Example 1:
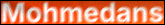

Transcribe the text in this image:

Mohmedans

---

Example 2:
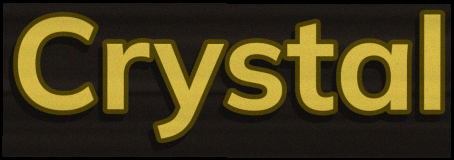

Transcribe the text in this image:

Crystal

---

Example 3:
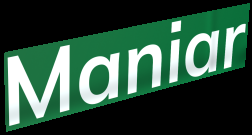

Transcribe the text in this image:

Maniar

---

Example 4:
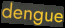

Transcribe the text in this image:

dengue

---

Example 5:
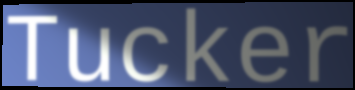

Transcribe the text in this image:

Tucker